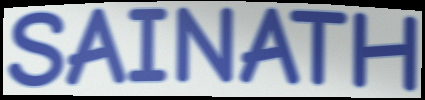
SAINATH